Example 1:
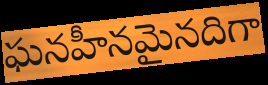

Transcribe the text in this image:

ఘనహీనమైనదిగా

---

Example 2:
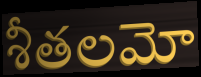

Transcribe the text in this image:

శీతలమో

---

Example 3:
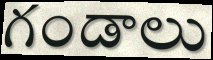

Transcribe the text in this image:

గండాలు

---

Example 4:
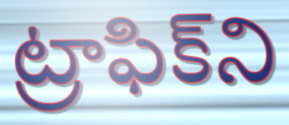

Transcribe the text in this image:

ట్రాఫిక్‌ని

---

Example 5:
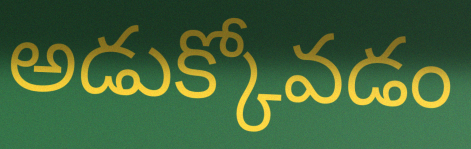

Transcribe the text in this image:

అడుక్కోవడం